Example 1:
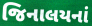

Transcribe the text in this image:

જિનાલયનાં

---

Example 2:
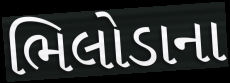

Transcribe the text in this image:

ભિલોડાના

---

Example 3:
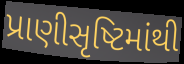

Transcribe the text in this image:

પ્રાણીસૃષ્ટિમાંથી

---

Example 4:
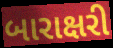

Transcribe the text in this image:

બારાક્ષરી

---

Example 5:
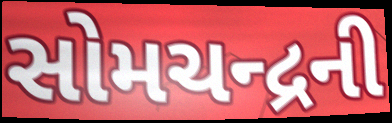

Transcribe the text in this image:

સોમચન્દ્રની